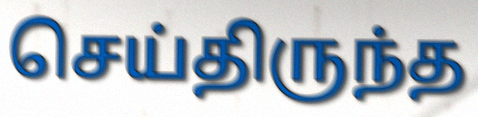
செய்திருந்த